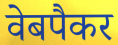
वेबपैकर